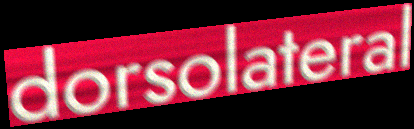
dorsolateral